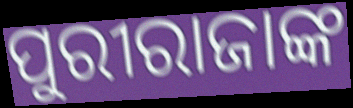
ପୁରୀରାଜାଙ୍କ